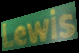
Lewis